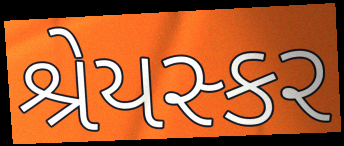
શ્રેયસ્કર